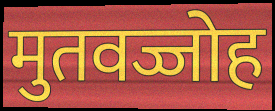
मुतवज्जोह